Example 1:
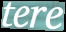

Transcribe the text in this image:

tere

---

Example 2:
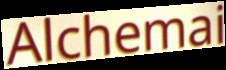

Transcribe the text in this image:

Alchemai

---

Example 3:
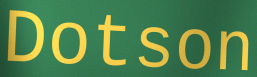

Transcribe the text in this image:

Dotson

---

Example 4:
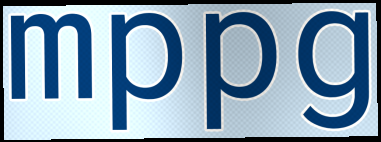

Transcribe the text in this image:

mppg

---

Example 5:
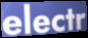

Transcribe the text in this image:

electr